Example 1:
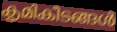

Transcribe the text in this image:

കൃമികീടങ്ങൾ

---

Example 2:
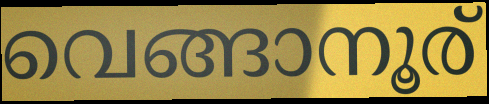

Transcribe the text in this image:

വെങ്ങാനൂര്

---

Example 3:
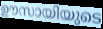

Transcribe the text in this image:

ഊസായിയുടെ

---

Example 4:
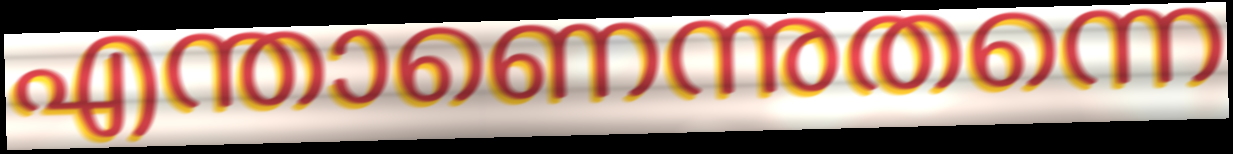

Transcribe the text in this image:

എന്താണെന്നുതന്നെ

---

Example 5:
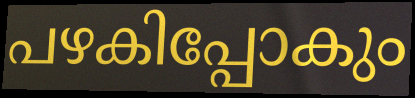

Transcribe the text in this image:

പഴകിപ്പോകും